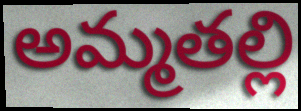
అమ్మతల్లి